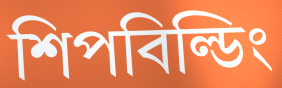
শিপবিল্ডিং